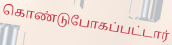
கொண்டுபோகப்பட்டார்